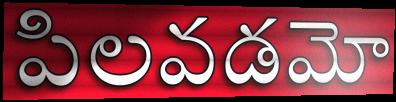
పిలవడమో